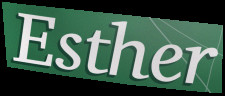
Esther